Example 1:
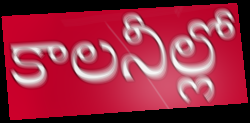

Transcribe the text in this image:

కాలనీల్లో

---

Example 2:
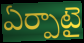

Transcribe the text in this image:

ఏర్పాటై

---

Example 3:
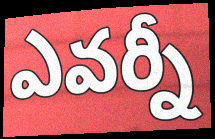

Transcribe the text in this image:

ఎవర్నీ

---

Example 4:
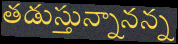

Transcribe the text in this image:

తడుస్తున్నానన్న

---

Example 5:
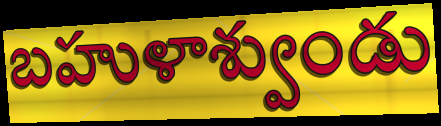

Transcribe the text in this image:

బహుళాశ్వుండు